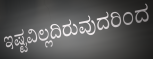
ಇಷ್ಟವಿಲ್ಲದಿರುವುದರಿಂದ